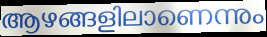
ആഴങ്ങളിലാണെന്നും